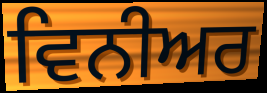
ਵਿਨੀਅਰ